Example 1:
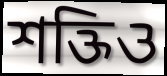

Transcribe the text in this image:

শক্তিও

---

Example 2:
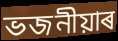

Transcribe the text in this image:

ভজনীয়াৰ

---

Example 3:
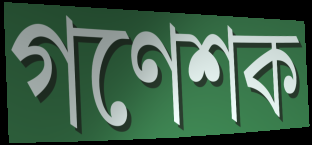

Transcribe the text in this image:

গণেশক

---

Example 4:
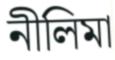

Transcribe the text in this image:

নীলিমা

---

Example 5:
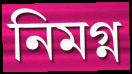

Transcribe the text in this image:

নিমগ্ন